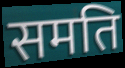
समति